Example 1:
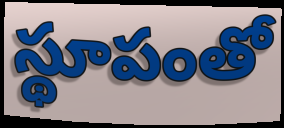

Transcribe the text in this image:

స్థూపంతో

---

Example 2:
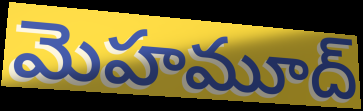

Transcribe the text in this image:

మెహమూద్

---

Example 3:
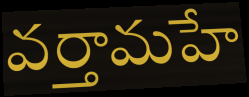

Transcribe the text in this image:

వర్తామహే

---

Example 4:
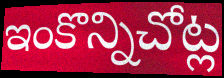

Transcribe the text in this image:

ఇంకొన్నిచోట్ల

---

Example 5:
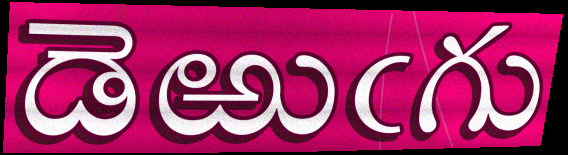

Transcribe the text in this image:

డెఱుఁగు